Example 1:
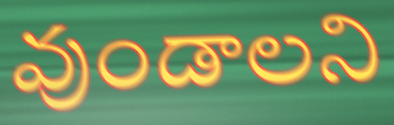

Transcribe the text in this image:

వుండాలని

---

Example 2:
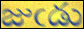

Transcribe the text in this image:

జుఁడు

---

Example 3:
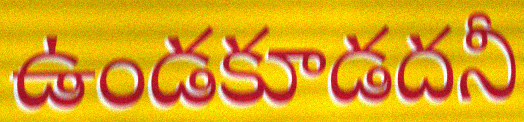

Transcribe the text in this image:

ఉండకూడదనీ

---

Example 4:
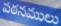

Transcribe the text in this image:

పఠనములు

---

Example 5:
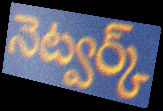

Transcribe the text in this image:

నెట్వర్క్